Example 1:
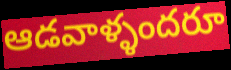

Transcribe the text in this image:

ఆడవాళ్ళందరూ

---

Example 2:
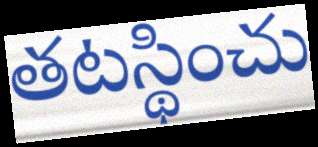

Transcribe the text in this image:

తటస్థించు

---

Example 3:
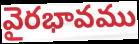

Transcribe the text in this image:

వైరభావము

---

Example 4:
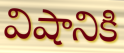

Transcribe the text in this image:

విషానికి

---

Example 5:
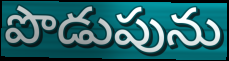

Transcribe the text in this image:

పొడుపును